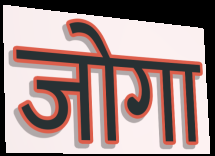
जोगा